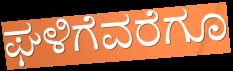
ಘಳಿಗೆವರೆಗೂ